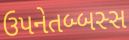
ઉપનેતબ્બસ્સ